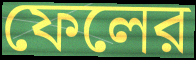
ফেলের